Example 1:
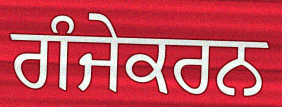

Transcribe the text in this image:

ਗੰਜੇਕਰਨ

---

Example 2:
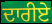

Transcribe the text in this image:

ਦਾਰੀਏ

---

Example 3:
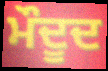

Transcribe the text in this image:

ਮੌਦੂਦ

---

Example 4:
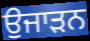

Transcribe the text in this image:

ਉਜਾੜਨ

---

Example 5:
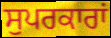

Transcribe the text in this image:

ਸੁਪਰਕਾਰਾਂ